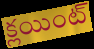
క్లయింట్